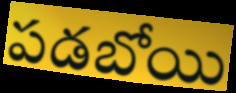
పడబోయి